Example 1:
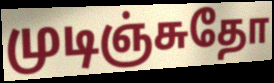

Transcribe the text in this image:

முடிஞ்சுதோ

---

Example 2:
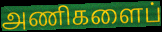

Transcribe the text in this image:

அணிகளைப்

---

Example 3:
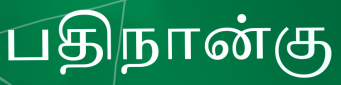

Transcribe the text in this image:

பதிநான்கு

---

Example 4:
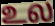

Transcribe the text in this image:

உல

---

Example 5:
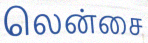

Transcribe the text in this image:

லென்சை